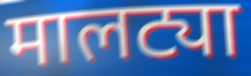
मालट्या